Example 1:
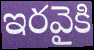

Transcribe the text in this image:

ఇరవైకి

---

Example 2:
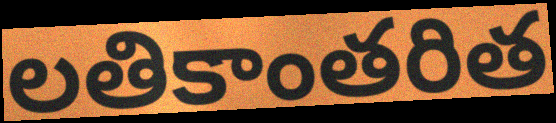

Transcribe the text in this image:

లతికాంతరిత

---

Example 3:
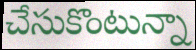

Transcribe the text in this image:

చేసుకొంటున్నా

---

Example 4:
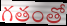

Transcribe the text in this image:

గతంతో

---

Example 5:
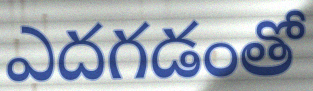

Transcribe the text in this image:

ఎదగడంతో